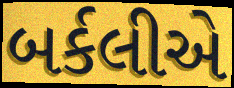
બર્કલીએ